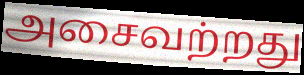
அசைவற்றது